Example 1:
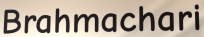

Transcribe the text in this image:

Brahmachari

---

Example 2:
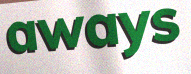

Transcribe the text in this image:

aways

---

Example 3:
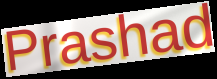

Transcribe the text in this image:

Prashad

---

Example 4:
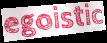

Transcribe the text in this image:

egoistic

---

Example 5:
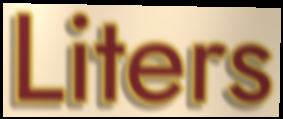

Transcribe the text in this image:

Liters